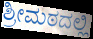
ಶ್ರೀಮಠದಲ್ಲಿ